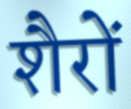
शैरों